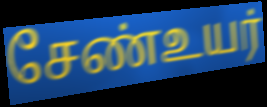
சேண்உயர்